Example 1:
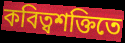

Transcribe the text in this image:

কবিত্বশক্তিতে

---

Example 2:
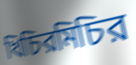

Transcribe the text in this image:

খিচিরমিচির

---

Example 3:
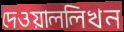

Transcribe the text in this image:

দেওয়াললিখন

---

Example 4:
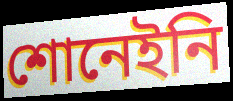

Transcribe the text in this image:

শোনেইনি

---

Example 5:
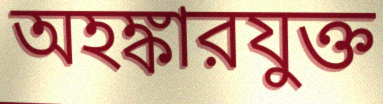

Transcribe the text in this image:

অহঙ্কারযুক্ত